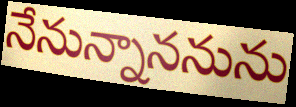
నేనున్నాననును